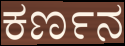
ಕರ್ಣನ